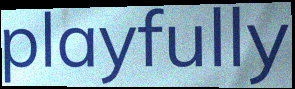
playfully